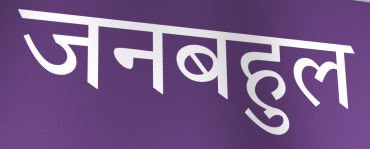
जनबहुल